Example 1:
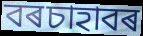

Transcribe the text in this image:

বৰচাহাবৰ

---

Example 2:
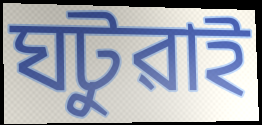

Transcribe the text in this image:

ঘটুৱাই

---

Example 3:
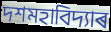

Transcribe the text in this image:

দশমহাবিদ্যাৰ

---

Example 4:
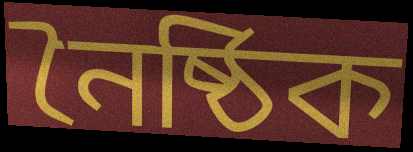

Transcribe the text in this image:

নৈষ্ঠিক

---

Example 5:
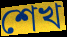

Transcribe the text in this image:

শেখ